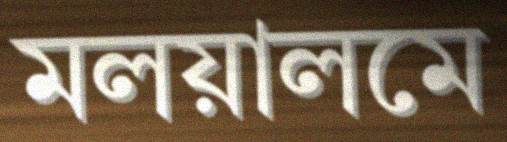
মলয়ালমে